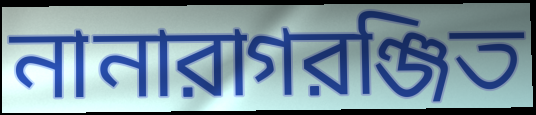
নানারাগরঞ্জিত